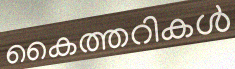
കൈത്തറികൾ